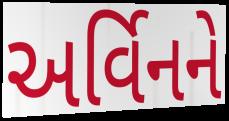
અર્વિનને